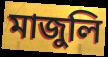
মাজুলি